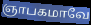
ஞாபகமாவே